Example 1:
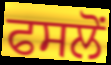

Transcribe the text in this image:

ਫਸਲੋਂ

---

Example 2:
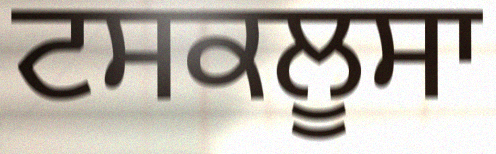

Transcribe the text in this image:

ਟਸਕਲੂਸਾ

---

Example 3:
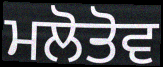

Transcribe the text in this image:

ਮਲੋਤੋਵ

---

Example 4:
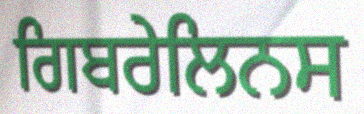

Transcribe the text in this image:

ਗਿਬਰੇਲਿਨਸ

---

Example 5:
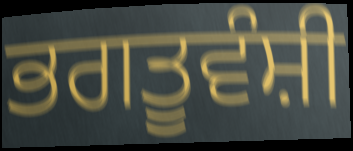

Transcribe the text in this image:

ਭਗਤੂਵੰਸ਼ੀ